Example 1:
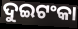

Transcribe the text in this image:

ଦୁଇଟଂକା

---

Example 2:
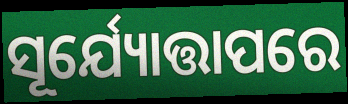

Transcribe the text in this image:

ସୂର୍ଯ୍ୟୋତ୍ତାପରେ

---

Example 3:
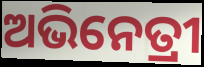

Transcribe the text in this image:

ଅଭିନେତ୍ରୀ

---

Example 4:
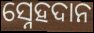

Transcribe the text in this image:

ସ୍ନେହଦାନ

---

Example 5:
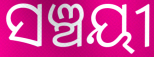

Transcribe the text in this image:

ସଞ୍ଚୟୀ